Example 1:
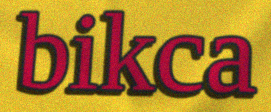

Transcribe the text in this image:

bikca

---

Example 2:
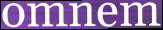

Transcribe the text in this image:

omnem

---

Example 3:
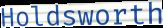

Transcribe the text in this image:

Holdsworth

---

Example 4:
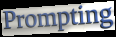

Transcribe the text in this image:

Prompting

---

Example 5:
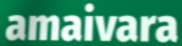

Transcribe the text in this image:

amaivara